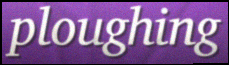
ploughing